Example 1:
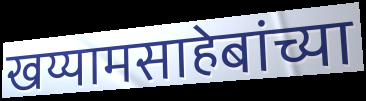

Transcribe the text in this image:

खय्यामसाहेबांच्या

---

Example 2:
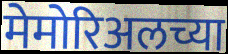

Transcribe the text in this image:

मेमोरिअलच्या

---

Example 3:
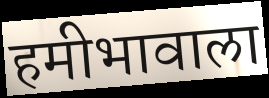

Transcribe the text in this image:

हमीभावाला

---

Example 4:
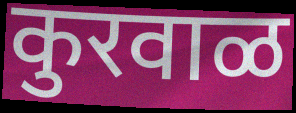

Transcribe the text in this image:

कुरवाळ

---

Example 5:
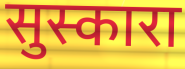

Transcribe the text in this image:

सुस्कारा